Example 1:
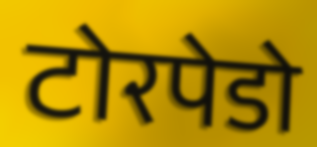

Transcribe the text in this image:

टोरपेडो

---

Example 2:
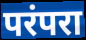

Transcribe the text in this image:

परंपरा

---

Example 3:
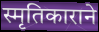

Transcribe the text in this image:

स्मृतिकाराने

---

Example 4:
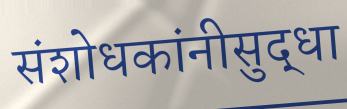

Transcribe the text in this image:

संशोधकांनीसुद्धा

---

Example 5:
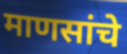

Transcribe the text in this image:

माणसांचे